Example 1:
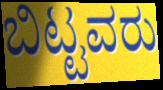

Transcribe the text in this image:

ಬಿಟ್ಟವರು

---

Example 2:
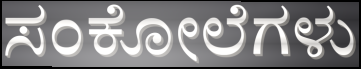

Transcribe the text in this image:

ಸಂಕೋಲೆಗಳು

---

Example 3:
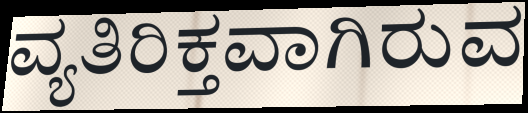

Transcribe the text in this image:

ವ್ಯತಿರಿಕ್ತವಾಗಿರುವ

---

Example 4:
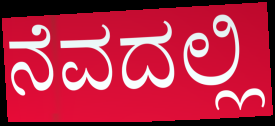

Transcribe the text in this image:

ನೆವದಲ್ಲಿ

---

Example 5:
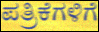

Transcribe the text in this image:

ಪತ್ರಿಕೆಗಳಿಗೆ